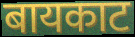
बायकाट